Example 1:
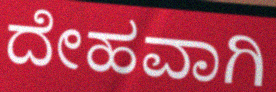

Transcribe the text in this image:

ದೇಹವಾಗಿ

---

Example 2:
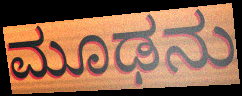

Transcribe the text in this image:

ಮೂಢನು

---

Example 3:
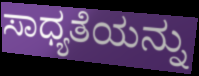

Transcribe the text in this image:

ಸಾಧ್ಯತೆಯನ್ನು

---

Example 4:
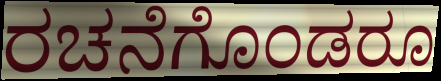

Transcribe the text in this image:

ರಚನೆಗೊಂಡರೂ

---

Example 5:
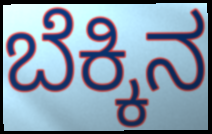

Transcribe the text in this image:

ಬೆಕ್ಕಿನ